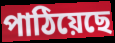
পাঠিয়েছে